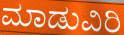
ಮಾಡುವಿರಿ